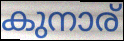
കുനാര്